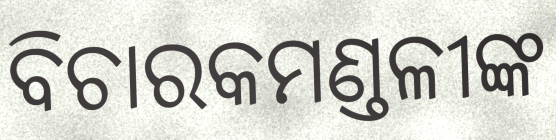
ବିଚାରକମଣ୍ଡଳୀଙ୍କ